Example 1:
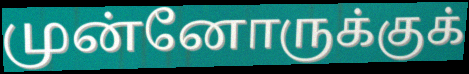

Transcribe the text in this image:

முன்னோருக்குக்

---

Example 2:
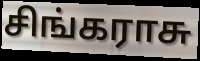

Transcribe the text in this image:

சிங்கராசு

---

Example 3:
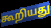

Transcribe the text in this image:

கூறியது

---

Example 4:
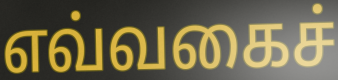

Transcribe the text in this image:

எவ்வகைச்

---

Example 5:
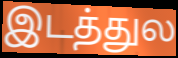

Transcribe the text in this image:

இடத்துல